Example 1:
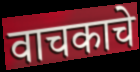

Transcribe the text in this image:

वाचकाचे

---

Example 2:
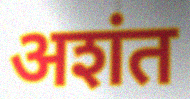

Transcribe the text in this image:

अशंत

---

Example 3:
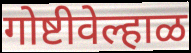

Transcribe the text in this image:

गोष्टीवेल्हाळ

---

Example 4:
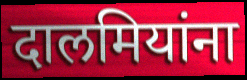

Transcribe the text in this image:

दालमियांना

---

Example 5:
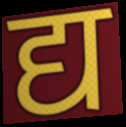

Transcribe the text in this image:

द्य